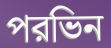
পরভিন